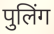
पुलिंग